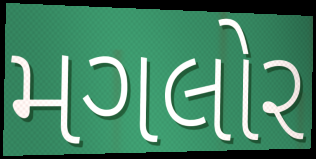
મગલોર